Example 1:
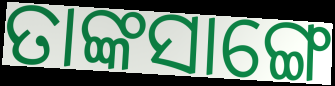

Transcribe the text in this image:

ତାଙ୍କସାଙ୍ଗେ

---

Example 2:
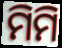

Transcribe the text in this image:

ମିମି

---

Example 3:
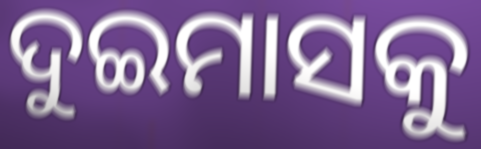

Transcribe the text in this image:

ଦୁଇମାସକୁ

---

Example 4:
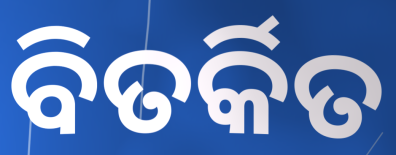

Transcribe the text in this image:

ବିତର୍କିତ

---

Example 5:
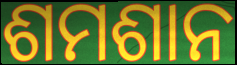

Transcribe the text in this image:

ଶମଶାନ